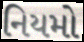
નિયમો